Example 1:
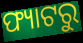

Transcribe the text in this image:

ଫ୍ୟାଟରୁ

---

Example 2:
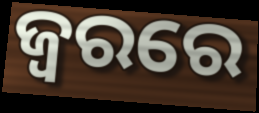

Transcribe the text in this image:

ଜ୍ବରରେ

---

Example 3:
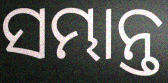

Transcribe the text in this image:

ସମ୍ଭାନ୍ତ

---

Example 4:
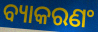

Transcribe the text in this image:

ବ୍ୟାକରଣଂ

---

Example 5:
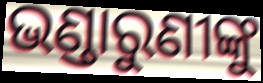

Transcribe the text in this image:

ଭଣ୍ଡାରୁଣୀଙ୍କୁ